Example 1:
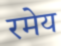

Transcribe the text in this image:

रमेय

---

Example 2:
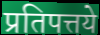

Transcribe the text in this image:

प्रतिपत्तये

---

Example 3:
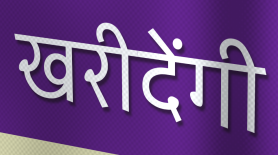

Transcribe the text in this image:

खरीदेंगी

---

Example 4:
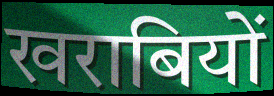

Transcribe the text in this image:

खराबियों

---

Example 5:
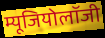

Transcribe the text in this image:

म्यूजियोलॉजी